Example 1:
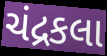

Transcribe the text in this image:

ચંદ્રકલા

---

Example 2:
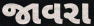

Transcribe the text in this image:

જાવરા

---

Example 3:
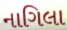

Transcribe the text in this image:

નાગિલા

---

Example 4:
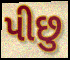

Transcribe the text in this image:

પીછુ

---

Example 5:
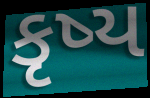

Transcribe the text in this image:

કૃષ્ય